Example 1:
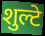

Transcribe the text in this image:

शुल्टे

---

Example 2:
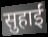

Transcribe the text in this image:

सुहाईं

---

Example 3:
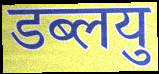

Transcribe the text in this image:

डब्लयु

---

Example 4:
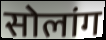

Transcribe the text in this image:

सोलांग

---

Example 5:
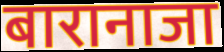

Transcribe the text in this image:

बारानाजा